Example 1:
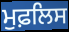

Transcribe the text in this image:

ਮੁਫ਼ਲਿਸ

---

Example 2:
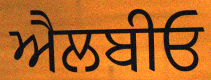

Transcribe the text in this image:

ਐਲਬੀਓ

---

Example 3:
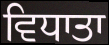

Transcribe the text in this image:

ਵਿਧਾਤਾ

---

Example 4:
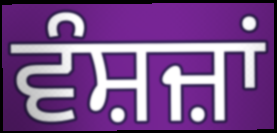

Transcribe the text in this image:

ਵੰਸ਼ਜ਼ਾਂ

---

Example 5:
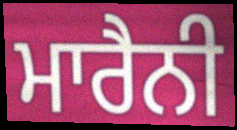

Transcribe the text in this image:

ਮਾਰੈਨੀ